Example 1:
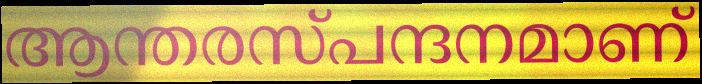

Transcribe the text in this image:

ആന്തരസ്പന്ദനമാണ്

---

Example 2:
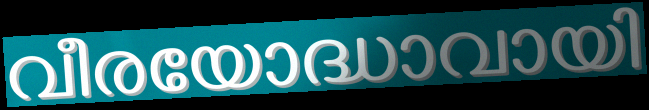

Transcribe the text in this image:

വീരയോദ്ധാവായി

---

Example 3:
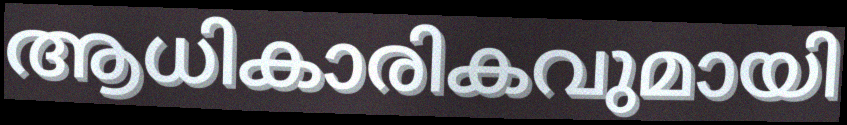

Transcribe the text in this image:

ആധികാരികവുമായി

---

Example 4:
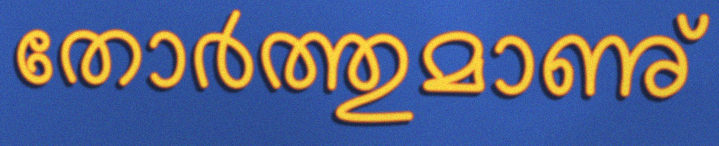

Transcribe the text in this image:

തോർത്തുമാണു്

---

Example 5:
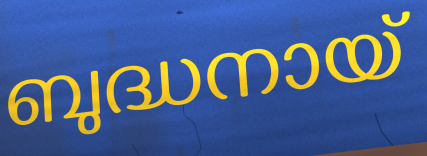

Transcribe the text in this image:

ബുദ്ധനായ്